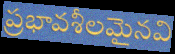
ప్రభావశీలమైనవి